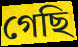
গেছি